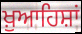
ਖ਼ੁਆਹਿਸ਼ਾਂ